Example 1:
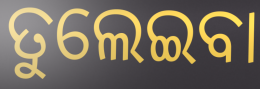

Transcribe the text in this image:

ତୁଲେଇବା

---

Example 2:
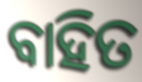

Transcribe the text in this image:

ବାହିତ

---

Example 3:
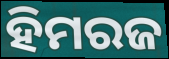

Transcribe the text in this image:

ହିମରଜ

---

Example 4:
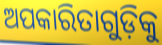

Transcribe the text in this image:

ଅପକାରିତାଗୁଡ଼ିକୁ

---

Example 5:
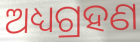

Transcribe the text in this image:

ଅଧ୍ୟଗ୍ରହଣ